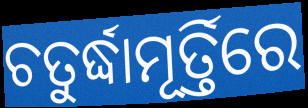
ଚତୁର୍ଦ୍ଧାମୂର୍ତ୍ତିରେ